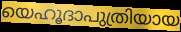
യെഹൂദാപുത്രിയായ